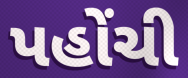
પહોંચી